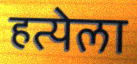
हत्येला